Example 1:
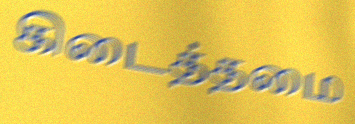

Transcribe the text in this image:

கிடைத்தமை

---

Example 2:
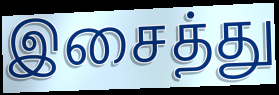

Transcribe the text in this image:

இசைத்து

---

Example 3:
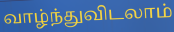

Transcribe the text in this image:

வாழ்ந்துவிடலாம்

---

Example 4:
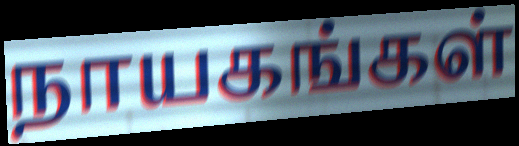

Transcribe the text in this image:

நாயகங்கள்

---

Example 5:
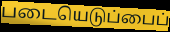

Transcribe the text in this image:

படையெடுப்பைப்